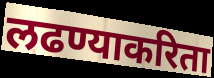
लढण्याकरिता